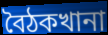
বৈঠকখানা